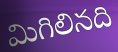
మిగిలినది